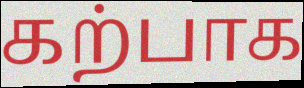
கற்பாக